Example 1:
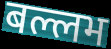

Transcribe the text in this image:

बल्लभ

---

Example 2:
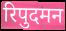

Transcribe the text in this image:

रिपुदमन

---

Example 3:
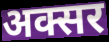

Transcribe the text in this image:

अक्सर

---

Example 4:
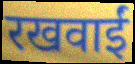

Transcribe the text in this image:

रखवाईं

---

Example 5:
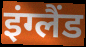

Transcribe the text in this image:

इंग्लैंड